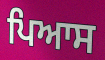
ਪਿਆਸ